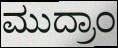
ಮುದ್ರಾಂ